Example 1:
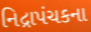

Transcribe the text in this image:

નિદ્રાપંચકના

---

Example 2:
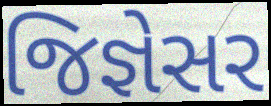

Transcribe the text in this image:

જિજ્ઞેસર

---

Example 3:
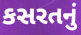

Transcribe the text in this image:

કસરતનું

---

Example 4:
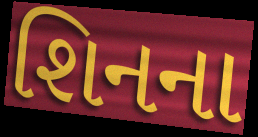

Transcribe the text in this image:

શિનના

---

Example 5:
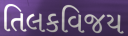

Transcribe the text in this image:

તિલકવિજય